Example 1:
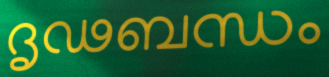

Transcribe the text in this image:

ദൃഢബന്ധം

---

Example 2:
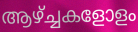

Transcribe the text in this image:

ആഴ്ച്ചകളോളം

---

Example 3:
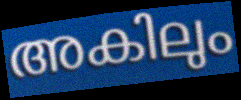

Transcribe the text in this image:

അകിലും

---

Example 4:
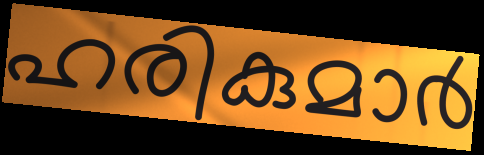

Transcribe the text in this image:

ഹരികുമാർ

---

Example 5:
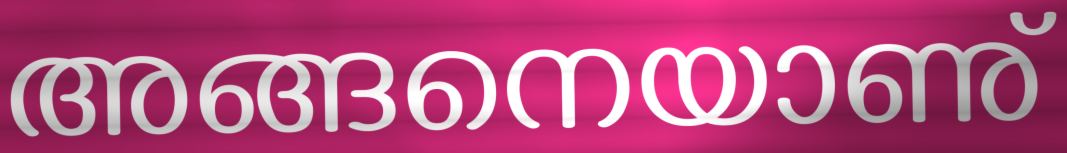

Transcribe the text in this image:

അങ്ങനെയാണു്